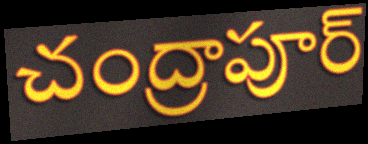
చంద్రాపూర్